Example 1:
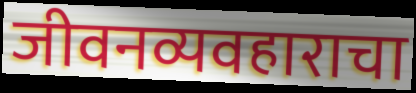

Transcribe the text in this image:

जीवनव्यवहाराचा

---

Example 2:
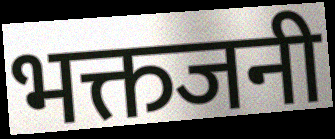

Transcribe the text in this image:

भक्तजनी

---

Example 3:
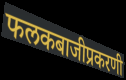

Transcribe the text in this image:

फलकबाजीप्रकरणी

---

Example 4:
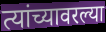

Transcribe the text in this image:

त्यांच्यावरल्या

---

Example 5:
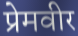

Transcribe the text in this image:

प्रेमवीर